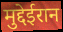
मुद्देईरान